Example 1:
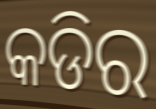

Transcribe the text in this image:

କଡିର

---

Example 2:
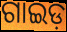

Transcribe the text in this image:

ଗାଇଡ଼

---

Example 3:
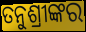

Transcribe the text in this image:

ତନୁଶ୍ରୀଙ୍କର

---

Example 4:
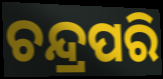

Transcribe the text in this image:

ଚନ୍ଦ୍ରପରି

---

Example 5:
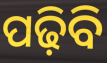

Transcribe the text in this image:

ପଢ଼ିବି